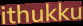
ithukku